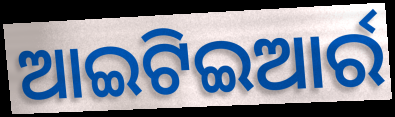
ଆଇଟିଇଆର୍ର